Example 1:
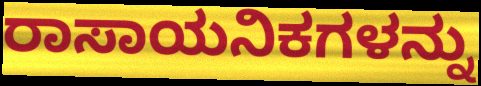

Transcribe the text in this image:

ರಾಸಾಯನಿಕಗಳನ್ನು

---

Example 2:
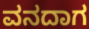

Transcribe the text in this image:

ವನದಾಗ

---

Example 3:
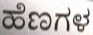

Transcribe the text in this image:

ಹೆಣಗಳ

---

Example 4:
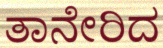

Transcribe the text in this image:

ತಾನೇರಿದ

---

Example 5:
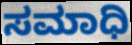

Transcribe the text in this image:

ಸಮಾಧಿ